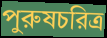
পুরুষচরিত্র